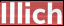
Illich